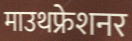
माउथफ्रेशनर